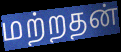
மற்றதன்